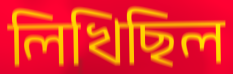
লিখিছিল